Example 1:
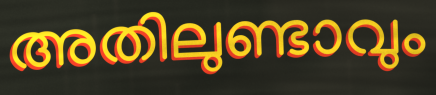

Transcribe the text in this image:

അതിലുണ്ടാവും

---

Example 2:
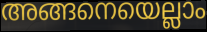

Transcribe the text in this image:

അങ്ങനെയെല്ലാം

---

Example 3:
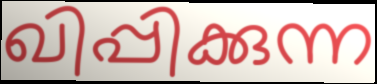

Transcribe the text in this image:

ഖിപ്പിക്കുന്ന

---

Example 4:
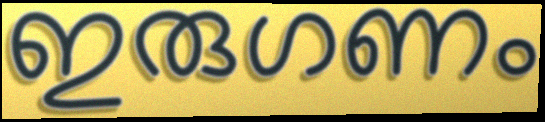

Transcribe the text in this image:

ഇരുഗണം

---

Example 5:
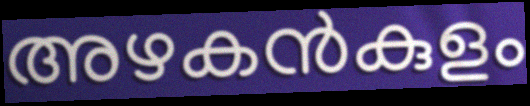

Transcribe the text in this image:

അഴകൻകുളം